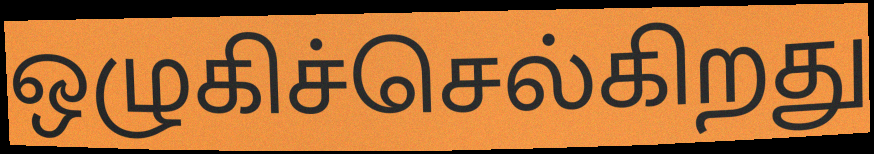
ஒழுகிச்செல்கிறது